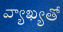
వ్యాఖ్యతో